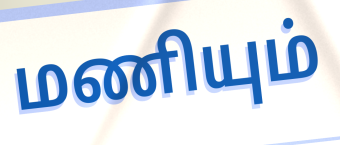
மணியும்